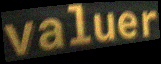
valuer